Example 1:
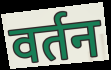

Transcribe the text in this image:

वर्तन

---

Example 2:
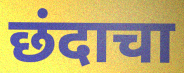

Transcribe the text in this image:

छंदाचा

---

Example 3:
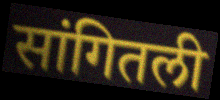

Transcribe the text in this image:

सांगितली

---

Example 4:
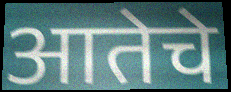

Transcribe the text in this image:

आतेचे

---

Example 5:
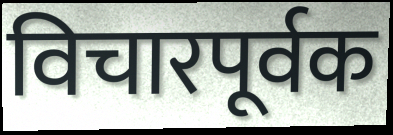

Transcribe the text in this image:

विचारपूर्वक